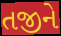
તજીને